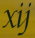
xij